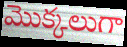
మొక్కలుగా